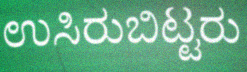
ಉಸಿರುಬಿಟ್ಟರು